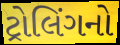
ટ્રોલિંગનો